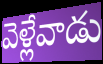
వెళ్లేవాడు